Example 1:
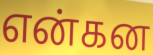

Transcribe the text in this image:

என்கன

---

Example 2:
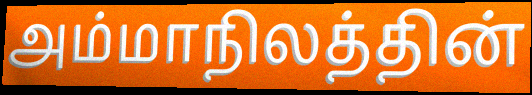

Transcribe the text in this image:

அம்மாநிலத்தின்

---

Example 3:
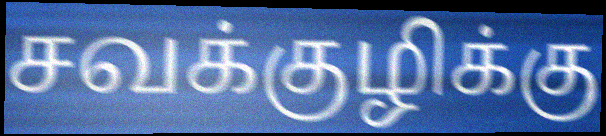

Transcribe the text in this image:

சவக்குழிக்கு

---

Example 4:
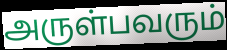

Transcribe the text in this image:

அருள்பவரும்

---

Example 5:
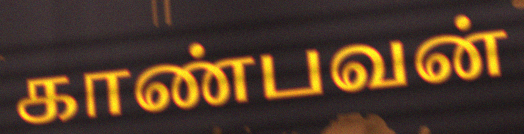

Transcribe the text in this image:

காண்பவன்